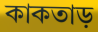
কাকতাড়